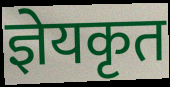
ज्ञेयकृत